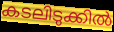
കടലിടുക്കിൽ